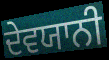
ਦੇਵਯਾਨੀ